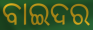
ବାଇଦର